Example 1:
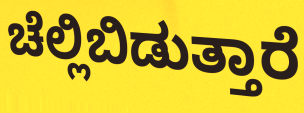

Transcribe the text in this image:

ಚೆಲ್ಲಿಬಿಡುತ್ತಾರೆ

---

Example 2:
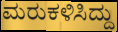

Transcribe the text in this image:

ಮರುಕಳಿಸಿದ್ದು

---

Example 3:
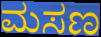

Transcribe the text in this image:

ಮಸಣ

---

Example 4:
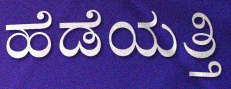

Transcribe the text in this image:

ಹೆಡೆಯತ್ತಿ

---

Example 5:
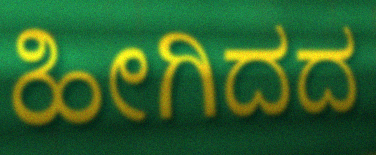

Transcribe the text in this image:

ಹೀಗಿದದ